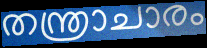
തന്ത്രാചാരം